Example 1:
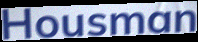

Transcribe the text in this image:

Housman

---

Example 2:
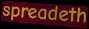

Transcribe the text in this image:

spreadeth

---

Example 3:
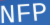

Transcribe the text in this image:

NFP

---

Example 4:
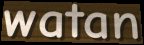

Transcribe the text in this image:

watan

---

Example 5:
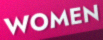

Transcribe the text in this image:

WOMEN